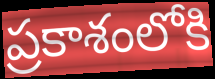
ప్రకాశంలోకి